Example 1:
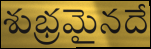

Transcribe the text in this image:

శుభ్రమైనదే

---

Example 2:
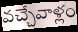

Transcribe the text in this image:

వచ్చేవాళ్లం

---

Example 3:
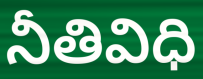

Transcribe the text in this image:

నీతివిధి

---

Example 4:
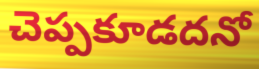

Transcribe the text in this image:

చెప్పకూడదనో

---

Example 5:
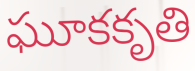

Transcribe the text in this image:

ఘూకకృతి